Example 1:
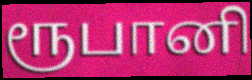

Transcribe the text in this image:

ரூபானி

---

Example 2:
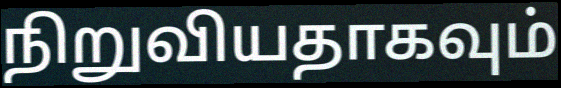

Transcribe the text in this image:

நிறுவியதாகவும்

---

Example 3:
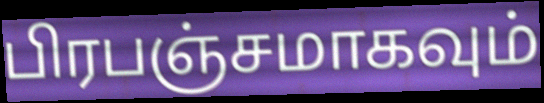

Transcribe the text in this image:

பிரபஞ்சமாகவும்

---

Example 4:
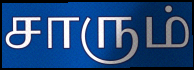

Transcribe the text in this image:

சாரும்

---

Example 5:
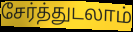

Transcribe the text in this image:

சேர்த்துடலாம்